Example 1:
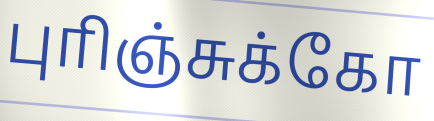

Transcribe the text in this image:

புரிஞ்சுக்கோ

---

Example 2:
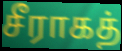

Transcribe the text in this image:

சீராகத்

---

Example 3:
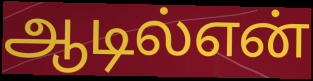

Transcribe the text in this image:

ஆடில்என்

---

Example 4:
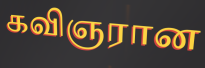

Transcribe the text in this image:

கவிஞரான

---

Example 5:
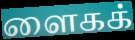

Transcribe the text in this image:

ளைகக்